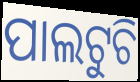
ପାଲଟୁଚି